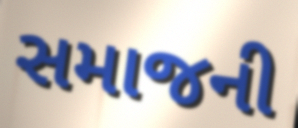
સમાજની